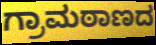
ಗ್ರಾಮಠಾಣದ